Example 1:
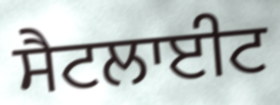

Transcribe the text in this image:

ਸੈਟਲਾਈਟ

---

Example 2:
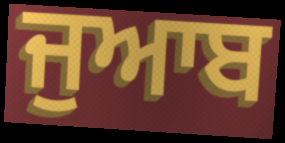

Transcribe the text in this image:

ਜੁਆਬ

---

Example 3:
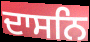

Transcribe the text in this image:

ਦਾਸਨਿ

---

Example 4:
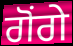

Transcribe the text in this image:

ਗੋਂਗੇ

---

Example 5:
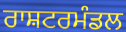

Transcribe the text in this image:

ਰਾਸ਼ਟਰਮੰਡਲ